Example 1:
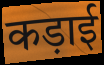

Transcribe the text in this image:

कड़ाई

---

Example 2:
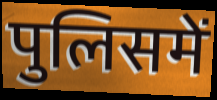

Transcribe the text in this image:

पुलिसमें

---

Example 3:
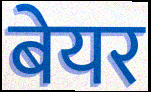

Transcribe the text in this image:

बेयर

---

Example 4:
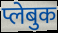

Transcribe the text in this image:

प्लेबुक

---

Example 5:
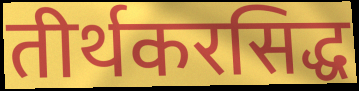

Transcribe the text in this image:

तीर्थकरसिद्ध